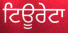
ਟਿਊਰੇਟਾ